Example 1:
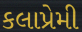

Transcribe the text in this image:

કલાપ્રેમી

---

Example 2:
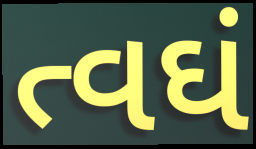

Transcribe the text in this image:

ત્વઘં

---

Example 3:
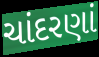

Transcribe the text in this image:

ચાંદરણાં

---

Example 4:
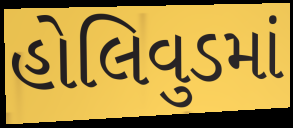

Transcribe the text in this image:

હોલિવુડમાં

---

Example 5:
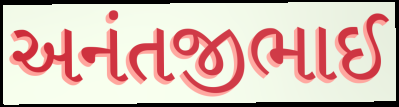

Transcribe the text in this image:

અનંતજીભાઈ